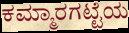
ಕಮ್ಮಾರಗಟ್ಟೆಯ